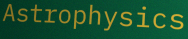
Astrophysics